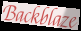
Backblaze